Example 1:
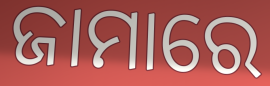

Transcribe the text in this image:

ଜାମାରେ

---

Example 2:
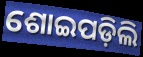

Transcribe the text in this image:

ଶୋଇପଡ଼ିଲି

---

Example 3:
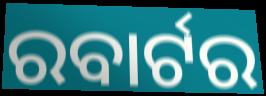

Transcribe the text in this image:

ରବାର୍ଟର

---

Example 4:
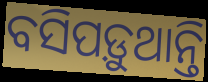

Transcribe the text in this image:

ବସିପଡ଼ୁଥାନ୍ତି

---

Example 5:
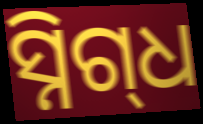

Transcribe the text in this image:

ସ୍ନିଗ୍‌ଧ